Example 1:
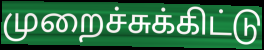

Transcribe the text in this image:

முறைச்சுக்கிட்டு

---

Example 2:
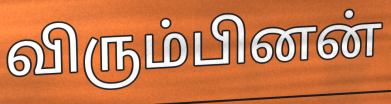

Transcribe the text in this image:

விரும்பினன்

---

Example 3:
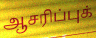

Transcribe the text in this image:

ஆசரிப்புக்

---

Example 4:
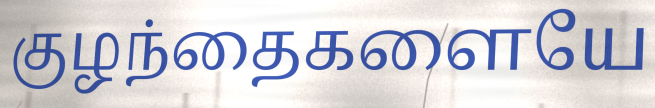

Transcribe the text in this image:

குழந்தைகளையே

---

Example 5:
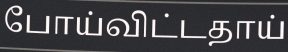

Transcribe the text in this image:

போய்விட்டதாய்